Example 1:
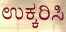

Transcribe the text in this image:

ಉಕ್ಕರಿಸಿ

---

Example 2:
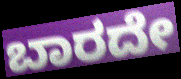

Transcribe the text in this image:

ಬಾರದೇ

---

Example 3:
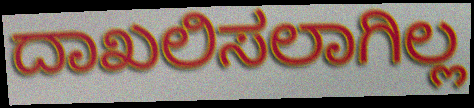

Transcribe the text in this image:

ದಾಖಲಿಸಲಾಗಿಲ್ಲ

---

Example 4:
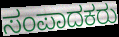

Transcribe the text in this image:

ಸಂಪಾದಕರು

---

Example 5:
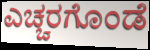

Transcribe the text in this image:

ಎಚ್ಚರಗೊಂಡೆ